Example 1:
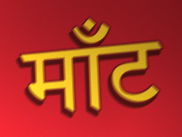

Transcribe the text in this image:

माँट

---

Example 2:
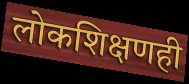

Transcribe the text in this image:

लोकशिक्षणही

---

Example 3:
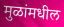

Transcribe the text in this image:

मुळांमधील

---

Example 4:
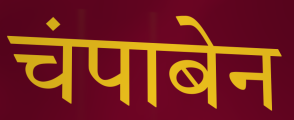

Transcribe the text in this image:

चंपाबेन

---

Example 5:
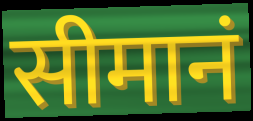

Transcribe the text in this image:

सीमानं